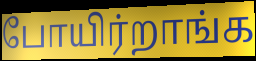
போயிர்றாங்க